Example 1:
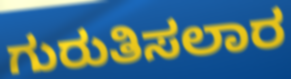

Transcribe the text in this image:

ಗುರುತಿಸಲಾರ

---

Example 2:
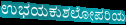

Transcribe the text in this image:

ಉಭಯಕುಶಲೋಪರಿಯ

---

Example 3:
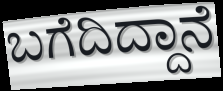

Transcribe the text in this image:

ಬಗೆದಿದ್ದಾನೆ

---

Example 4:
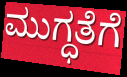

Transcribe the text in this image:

ಮುಗ್ಧತೆಗೆ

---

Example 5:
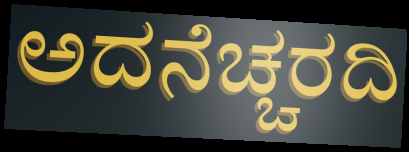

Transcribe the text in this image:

ಅದನೆಚ್ಚರದಿ